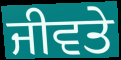
ਜੀਵਤੇ